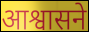
आश्वासने